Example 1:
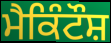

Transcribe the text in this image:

ਮੈਕਿੰਟੌਸ਼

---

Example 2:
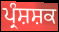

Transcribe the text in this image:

ਪ੍ਰੰਸ਼ਸ਼ਕ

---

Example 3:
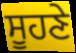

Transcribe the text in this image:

ਸੂਹਣੇ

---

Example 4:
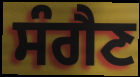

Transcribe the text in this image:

ਸੰਗੈਣ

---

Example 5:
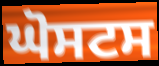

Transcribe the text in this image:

ਘੋਸਟਸ